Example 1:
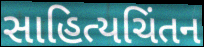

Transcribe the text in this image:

સાહિત્યચિંતન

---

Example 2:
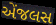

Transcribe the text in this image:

એંજલસ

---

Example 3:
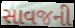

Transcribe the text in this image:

સાવજની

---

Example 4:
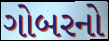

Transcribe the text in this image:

ગોબરનો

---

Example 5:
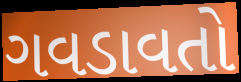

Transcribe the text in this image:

ગવડાવતો